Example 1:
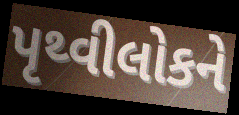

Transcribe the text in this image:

પૃથ્વીલોકને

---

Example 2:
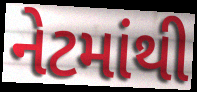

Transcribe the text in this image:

નેટમાંથી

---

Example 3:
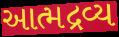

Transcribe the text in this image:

આત્મદ્રવ્ય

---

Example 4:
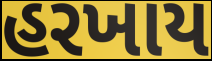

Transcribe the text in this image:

હરખાય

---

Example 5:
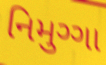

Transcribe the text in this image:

નિમુગ્ગા